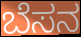
ಬೆಸನ